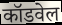
कॉडवेल